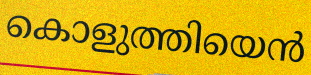
കൊളുത്തിയെൻ